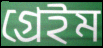
গ্রেইম